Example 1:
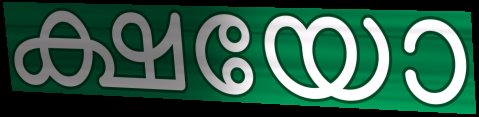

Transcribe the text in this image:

ക്ഷയോ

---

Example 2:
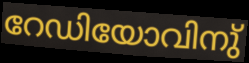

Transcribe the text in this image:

റേഡിയോവിനു്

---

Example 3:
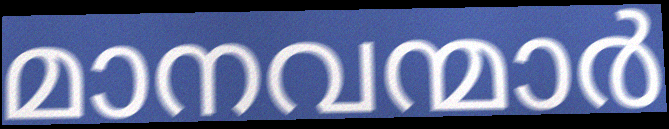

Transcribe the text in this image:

മാനവന്മാർ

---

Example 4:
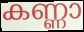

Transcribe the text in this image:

കണ്ണാ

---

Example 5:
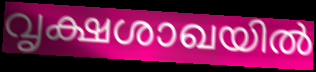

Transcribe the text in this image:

വൃക്ഷശാഖയിൽ